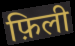
फ़िली